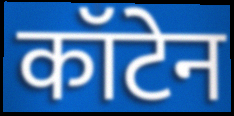
कॉटेन